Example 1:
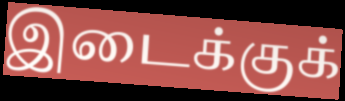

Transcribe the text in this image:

இடைக்குக்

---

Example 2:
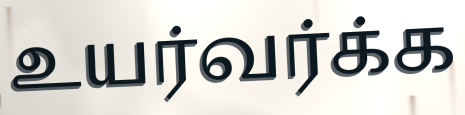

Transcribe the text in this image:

உயர்வர்க்க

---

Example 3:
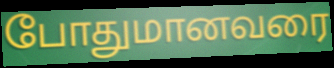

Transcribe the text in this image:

போதுமானவரை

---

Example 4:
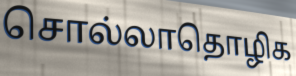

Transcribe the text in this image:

சொல்லாதொழிக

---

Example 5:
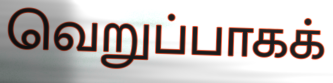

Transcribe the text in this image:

வெறுப்பாகக்